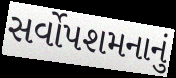
સર્વોપશમનાનું